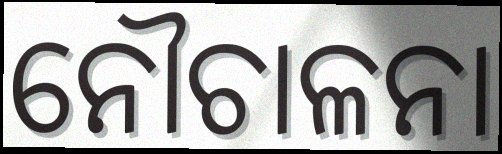
ନୌଚାଳନା